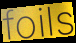
foils